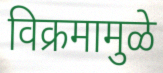
विक्रमामुळे